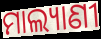
ମାଲ୍ୟାଣୀ